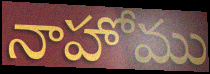
నాహోము